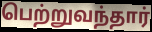
பெற்றுவந்தார்